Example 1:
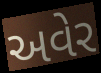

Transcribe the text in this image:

અવેર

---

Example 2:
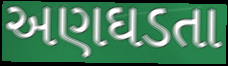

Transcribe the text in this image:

અણઘડતા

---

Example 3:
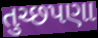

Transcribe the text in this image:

તુચ્છપણા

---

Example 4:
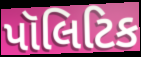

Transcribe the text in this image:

પૉલિટિક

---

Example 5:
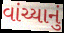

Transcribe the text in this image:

વાંચ્યાનું